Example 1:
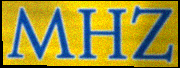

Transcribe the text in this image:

MHZ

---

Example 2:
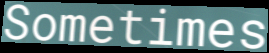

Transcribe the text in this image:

Sometimes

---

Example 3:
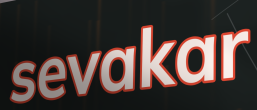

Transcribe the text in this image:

sevakar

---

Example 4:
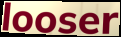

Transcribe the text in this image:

looser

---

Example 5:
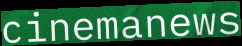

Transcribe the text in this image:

cinemanews